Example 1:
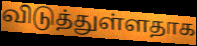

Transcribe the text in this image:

விடுத்துள்ளதாக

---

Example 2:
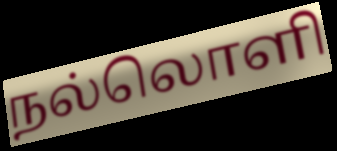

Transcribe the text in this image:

நல்லொளி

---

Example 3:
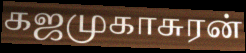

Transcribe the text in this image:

கஜமுகாசுரன்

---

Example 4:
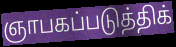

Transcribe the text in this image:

ஞாபகப்படுத்திக்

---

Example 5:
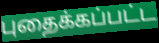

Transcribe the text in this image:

புதைக்கப்பட்ட